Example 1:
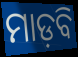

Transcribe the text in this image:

ମାଡ଼ବି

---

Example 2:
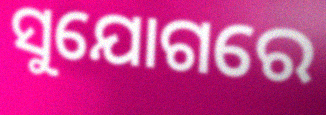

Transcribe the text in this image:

ସୁଯୋଗରେ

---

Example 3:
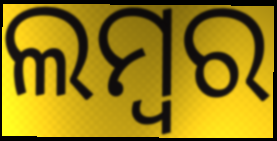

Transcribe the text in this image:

ଲମ୍ବର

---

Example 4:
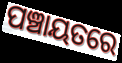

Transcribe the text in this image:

ପଞ୍ଚାୟତରେ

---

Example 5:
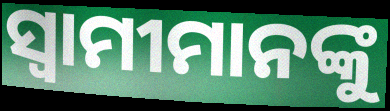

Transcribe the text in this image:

ସ୍ଵାମୀମାନଙ୍କୁ